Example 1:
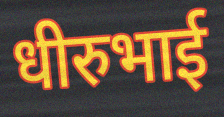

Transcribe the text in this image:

धीरुभाई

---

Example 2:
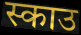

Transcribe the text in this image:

स्काउ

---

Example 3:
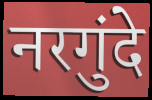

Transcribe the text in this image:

नरगुंदे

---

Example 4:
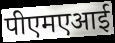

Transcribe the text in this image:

पीएमएआई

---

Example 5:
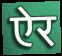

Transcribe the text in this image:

ऐर